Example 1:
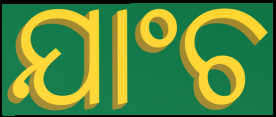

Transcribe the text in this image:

ଯାଂଚ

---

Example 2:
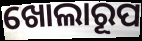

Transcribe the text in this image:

ଖୋଲାରୂପ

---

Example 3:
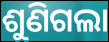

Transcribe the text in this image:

ଶୁଣିଗଲା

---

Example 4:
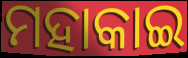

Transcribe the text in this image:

ମହାକାଇ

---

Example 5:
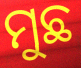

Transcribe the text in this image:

ମୁଛ